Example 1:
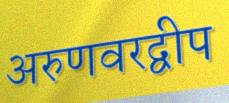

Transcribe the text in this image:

अरुणवरद्वीप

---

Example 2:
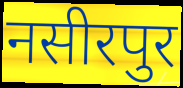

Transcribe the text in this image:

नसीरपुर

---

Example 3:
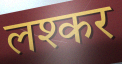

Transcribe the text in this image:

लश्‍कर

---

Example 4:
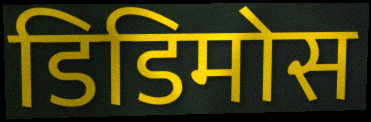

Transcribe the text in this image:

डिडिमोस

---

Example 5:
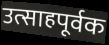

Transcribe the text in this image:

उत्‍साहपूर्वक